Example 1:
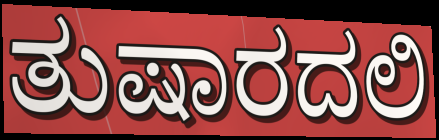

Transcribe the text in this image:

ತುಷಾರದಲಿ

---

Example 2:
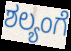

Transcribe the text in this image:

ಶಲ್ಯಂಗೆ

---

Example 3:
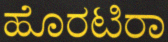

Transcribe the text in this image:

ಹೊರಟಿರಾ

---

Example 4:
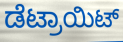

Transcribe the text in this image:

ಡೆಟ್ರಾಯಿಟ್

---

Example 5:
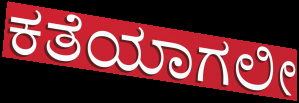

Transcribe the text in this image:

ಕತೆಯಾಗಲೀ